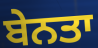
ਬੇਨਤਾ